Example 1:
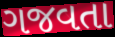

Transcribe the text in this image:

ગજવતા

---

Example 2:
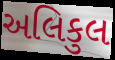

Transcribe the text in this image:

અલિકુલ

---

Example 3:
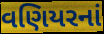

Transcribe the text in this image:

વણિયરનાં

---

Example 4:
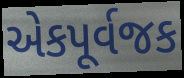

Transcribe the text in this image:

એકપૂર્વજક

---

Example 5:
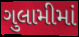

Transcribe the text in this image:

ગુલામીમાં